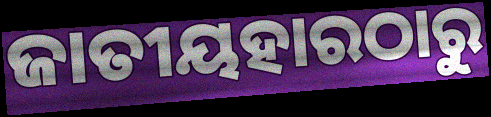
ଜାତୀୟହାରଠାରୁ